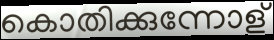
കൊതിക്കുന്നോള്